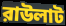
রাউলাট